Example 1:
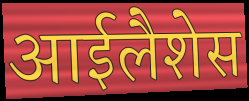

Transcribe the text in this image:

आईलैशेस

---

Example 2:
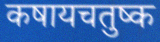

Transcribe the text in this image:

कषायचतुष्क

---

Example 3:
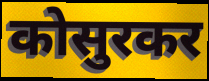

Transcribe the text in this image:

कोसुरकर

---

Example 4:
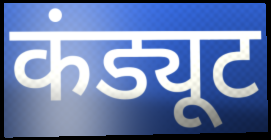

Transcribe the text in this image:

कंड्यूट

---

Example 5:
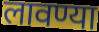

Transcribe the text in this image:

लावण्या